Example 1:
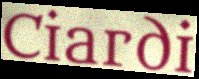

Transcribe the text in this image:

Ciardi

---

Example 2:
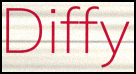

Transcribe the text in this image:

Diffy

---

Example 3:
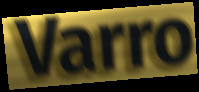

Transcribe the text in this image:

Varro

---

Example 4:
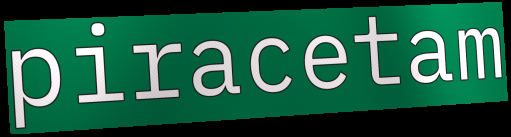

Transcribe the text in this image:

piracetam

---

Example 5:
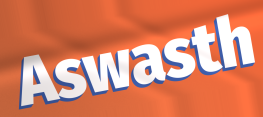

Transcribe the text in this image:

Aswasth